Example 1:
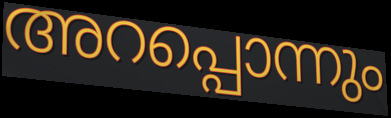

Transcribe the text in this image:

അറപ്പൊന്നും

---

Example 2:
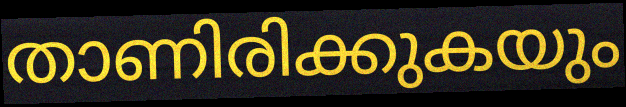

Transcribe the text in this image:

താണിരിക്കുകയും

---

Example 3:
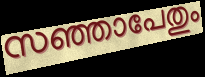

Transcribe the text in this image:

സഞ്ഞാപേതും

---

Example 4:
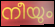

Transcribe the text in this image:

നീയും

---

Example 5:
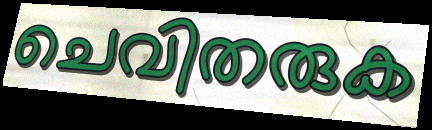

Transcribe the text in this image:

ചെവിതരുക